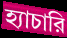
হ্যাচারি